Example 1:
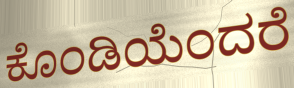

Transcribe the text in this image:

ಕೊಂಡಿಯೆಂದರೆ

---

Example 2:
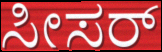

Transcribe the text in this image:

ಸೀಸರ್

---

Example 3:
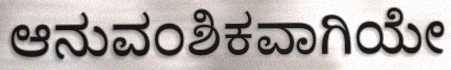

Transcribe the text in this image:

ಆನುವಂಶಿಕವಾಗಿಯೇ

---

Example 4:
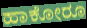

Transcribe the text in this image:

ಹಾಕೋರೂ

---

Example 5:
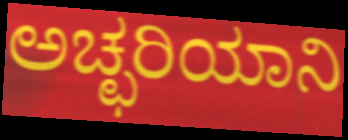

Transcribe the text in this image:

ಅಚ್ಛರಿಯಾನಿ